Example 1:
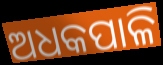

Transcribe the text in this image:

ଅଧକପାଳି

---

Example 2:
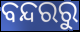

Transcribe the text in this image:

ବନ୍ଦରରୁ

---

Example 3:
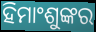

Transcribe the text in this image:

ହିମାଂଶୁଙ୍କର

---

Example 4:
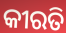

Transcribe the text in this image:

କୀରତି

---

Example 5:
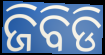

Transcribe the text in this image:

ଜିବିଡି